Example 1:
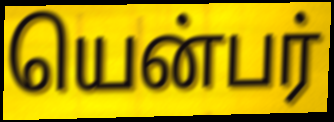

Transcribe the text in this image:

யென்பர்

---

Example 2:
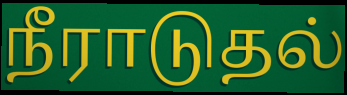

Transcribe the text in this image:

நீராடுதல்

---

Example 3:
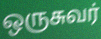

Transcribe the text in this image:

ஒருசுவர்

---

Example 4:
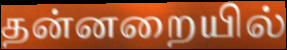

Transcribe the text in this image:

தன்னறையில்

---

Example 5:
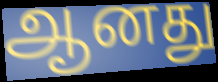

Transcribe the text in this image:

ஆனது